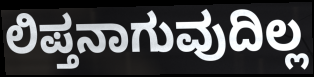
ಲಿಪ್ತನಾಗುವುದಿಲ್ಲ